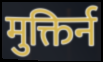
मुक्तिर्न